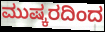
ಮುಷ್ಕರದಿಂದ